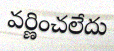
వర్ణించలేదు